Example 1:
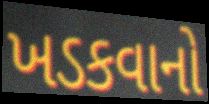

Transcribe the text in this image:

ખડકવાનો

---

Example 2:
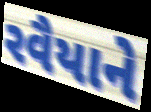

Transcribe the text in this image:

રવૈયાને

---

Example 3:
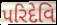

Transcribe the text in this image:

પરિદેવિ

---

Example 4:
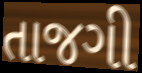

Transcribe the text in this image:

તાજગી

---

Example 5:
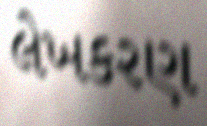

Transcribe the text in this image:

લેખકરણ